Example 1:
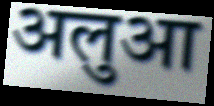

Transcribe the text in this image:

अलुआ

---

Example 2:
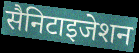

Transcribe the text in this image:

सैनिटाइजेशन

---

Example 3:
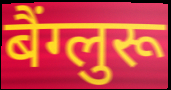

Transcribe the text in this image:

बैंग्लुरू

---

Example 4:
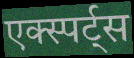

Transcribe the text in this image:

एक्स्पर्ट्स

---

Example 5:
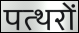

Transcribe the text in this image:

पत्‍थरों